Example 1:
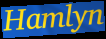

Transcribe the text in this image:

Hamlyn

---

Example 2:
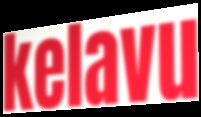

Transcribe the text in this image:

kelavu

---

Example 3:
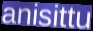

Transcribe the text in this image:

anisittu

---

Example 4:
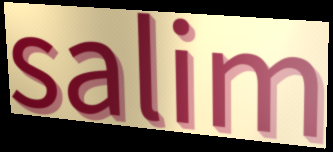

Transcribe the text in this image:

salim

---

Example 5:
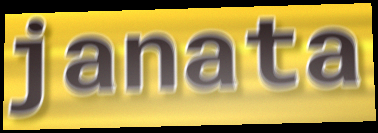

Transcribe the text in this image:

janata